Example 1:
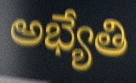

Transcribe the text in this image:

అభ్యేతి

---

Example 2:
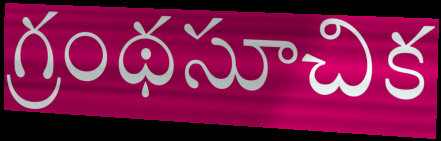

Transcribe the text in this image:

గ్రంథసూచిక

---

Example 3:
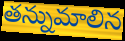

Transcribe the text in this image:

తన్నుమాలిన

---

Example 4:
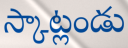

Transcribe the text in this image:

స్కాట్లండు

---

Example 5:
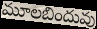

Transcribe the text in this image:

మూలబిందువు